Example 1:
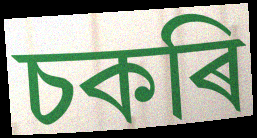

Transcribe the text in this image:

চকৰি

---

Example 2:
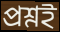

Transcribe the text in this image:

প্ৰশ্নই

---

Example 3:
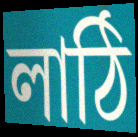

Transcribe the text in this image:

লাঠি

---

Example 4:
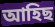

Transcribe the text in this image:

আহিছ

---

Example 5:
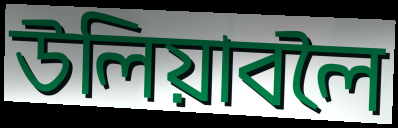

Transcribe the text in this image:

উলিয়াবলৈ